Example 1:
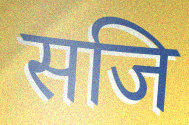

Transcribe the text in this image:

सजि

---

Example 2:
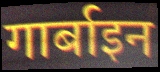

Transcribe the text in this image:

गार्बाइन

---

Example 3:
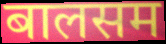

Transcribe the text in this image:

बालसम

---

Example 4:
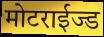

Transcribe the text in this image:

मोटराईज्ड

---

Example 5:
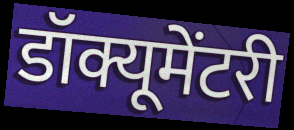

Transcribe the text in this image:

डॉक्यूमेंटरी